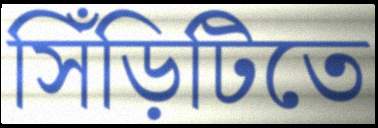
সিঁড়িটিতে